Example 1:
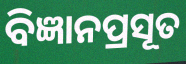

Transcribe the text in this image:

ବିଜ୍ଞାନପ୍ରସୂତ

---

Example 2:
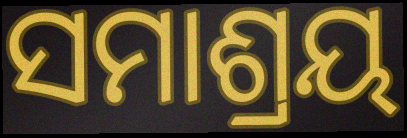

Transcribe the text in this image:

ସମାଶ୍ରୟ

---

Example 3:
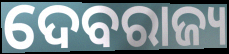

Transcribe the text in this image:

ଦେବରାଜ୍ୟ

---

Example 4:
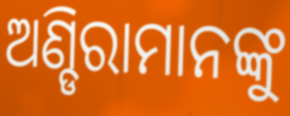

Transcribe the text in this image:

ଅଣ୍ଡିରାମାନଙ୍କୁ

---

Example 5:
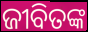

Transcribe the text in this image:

ଜୀବିତଙ୍କ